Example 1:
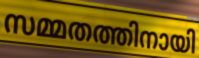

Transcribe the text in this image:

സമ്മതത്തിനായി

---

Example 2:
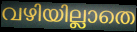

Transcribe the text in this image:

വഴിയില്ലാതെ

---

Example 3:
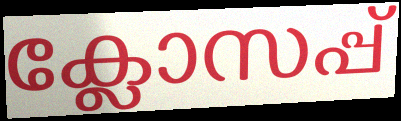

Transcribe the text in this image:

ക്ലോസപ്പ്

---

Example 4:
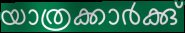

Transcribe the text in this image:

യാത്രക്കാർക്കു്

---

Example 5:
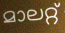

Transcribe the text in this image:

മാലറ്റ്